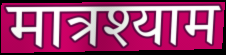
मात्रश्याम